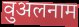
वुअलनाम